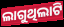
ଲାଗୁଥିଲାଟି